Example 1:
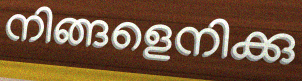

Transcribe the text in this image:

നിങ്ങളെനിക്കു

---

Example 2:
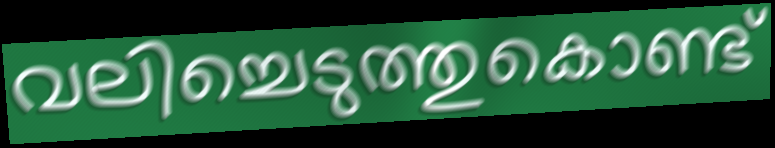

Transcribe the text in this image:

വലിച്ചെടുത്തുകൊണ്ട്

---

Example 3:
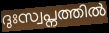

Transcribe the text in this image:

ദുഃസ്വപ്നത്തിൽ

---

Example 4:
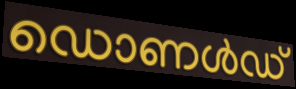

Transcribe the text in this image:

ഡൊണൾഡ്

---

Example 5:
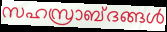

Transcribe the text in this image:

സഹസ്രാബ്ദങ്ങൾ